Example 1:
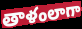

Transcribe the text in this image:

తాళంలాగా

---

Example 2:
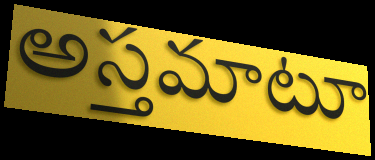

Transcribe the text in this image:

అస్తమాటూ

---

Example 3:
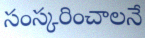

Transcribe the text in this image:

సంస్కరించాలనే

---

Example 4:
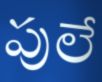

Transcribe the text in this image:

పులే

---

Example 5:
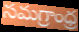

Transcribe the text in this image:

సమగ్రాంధ్ర